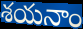
శయనాం